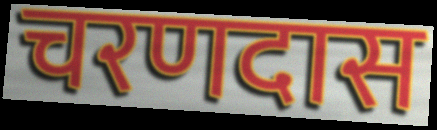
चरणदास